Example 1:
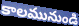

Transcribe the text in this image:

కాలమునుండి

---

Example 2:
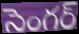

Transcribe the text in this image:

సెంగర్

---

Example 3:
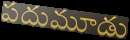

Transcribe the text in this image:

పదుమూడు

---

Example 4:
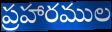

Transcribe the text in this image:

ప్రహారముల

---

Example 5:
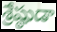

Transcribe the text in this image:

శ్రేష్ఠుడా